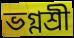
ভগ্নশ্রী